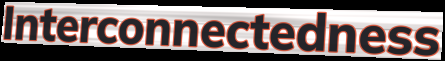
Interconnectedness